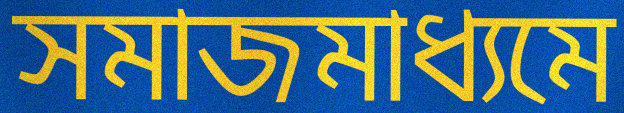
সমাজমাধ্যমে